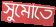
সুমোতে